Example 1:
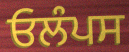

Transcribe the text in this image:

ਓਲੰਪਸ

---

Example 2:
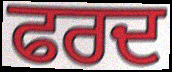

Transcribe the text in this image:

ਫਰਦ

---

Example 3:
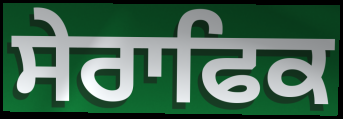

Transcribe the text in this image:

ਸੇਰਾਫਿਕ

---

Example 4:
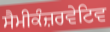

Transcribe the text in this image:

ਸੈਮੀਕੰਜ਼ਰਵੇਟਿਵ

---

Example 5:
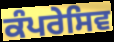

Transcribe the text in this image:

ਕੰਪਰੇਸਿਵ